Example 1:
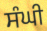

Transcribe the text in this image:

ਸੰਘੀ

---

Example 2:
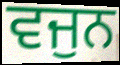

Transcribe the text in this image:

ਵਜੁਨ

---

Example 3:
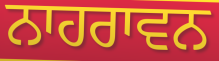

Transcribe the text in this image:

ਨਾਹਰਾਵਨ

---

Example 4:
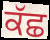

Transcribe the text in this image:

ਕੱਛ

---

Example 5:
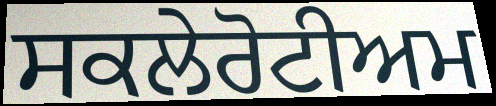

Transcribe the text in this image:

ਸਕਲੇਰੋਟੀਅਮ